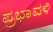
ಪ್ರಭಾವಳಿ